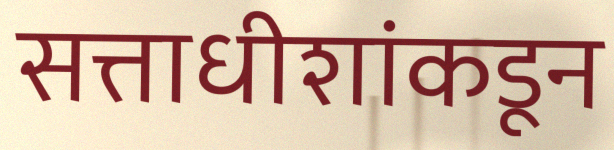
सत्ताधीशांकडून